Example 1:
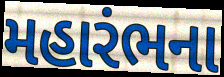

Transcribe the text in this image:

મહારંભના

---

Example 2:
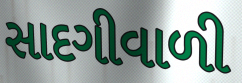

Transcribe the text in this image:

સાદગીવાળી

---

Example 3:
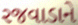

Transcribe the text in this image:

રજવાડાને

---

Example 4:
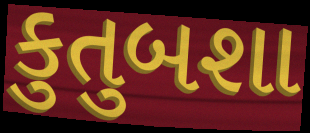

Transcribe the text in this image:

કુતુબશા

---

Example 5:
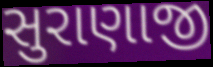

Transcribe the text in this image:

સુરાણાજી